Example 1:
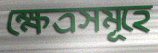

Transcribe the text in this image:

ক্ষেত্ৰসমূহে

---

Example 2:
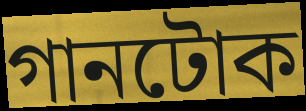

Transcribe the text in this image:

গানটোক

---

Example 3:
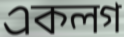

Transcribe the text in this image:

একলগ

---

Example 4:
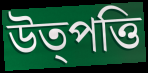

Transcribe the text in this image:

উত্পত্তি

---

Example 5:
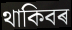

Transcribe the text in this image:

থাকিবৰ